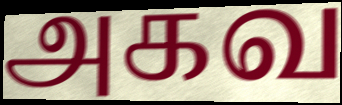
அகவ